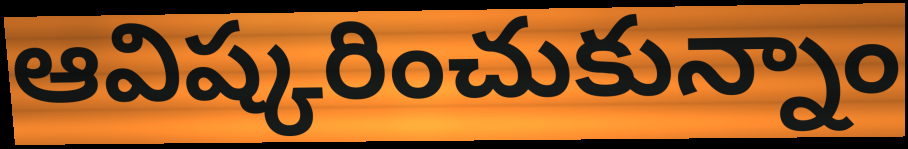
ఆవిష్కరించుకున్నాం